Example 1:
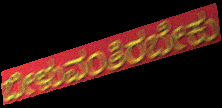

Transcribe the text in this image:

ಬೀಳುವಂತಿರಬೇಕು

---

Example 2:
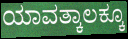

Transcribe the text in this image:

ಯಾವತ್ಕಾಲಕ್ಕೂ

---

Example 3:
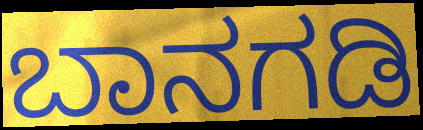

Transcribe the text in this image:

ಬಾನಗಡಿ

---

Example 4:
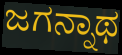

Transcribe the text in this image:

ಜಗನ್ನಾಥ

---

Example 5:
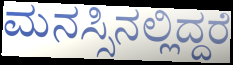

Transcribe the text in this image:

ಮನಸ್ಸಿನಲ್ಲಿದ್ದರೆ